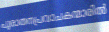
പുരാതനപ്രവാചകന്മാരിൽ